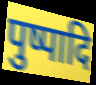
पुष्पादि